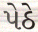
પેઠે